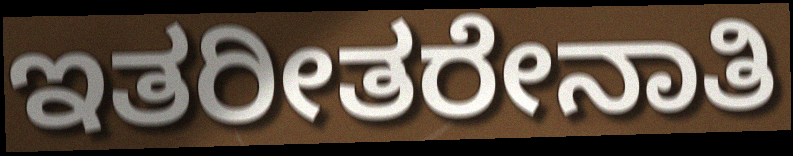
ಇತರೀತರೇನಾತಿ